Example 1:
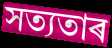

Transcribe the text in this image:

সত্যতাৰ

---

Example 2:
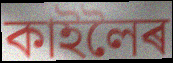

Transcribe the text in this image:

কাইলৈৰ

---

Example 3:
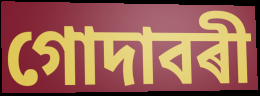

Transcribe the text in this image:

গোদাবৰী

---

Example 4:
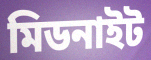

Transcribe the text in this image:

মিডনাইট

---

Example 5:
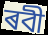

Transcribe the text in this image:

ৰবী